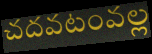
చదవటంవల్ల